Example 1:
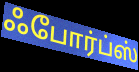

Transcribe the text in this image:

ஃபோர்ப்ஸ்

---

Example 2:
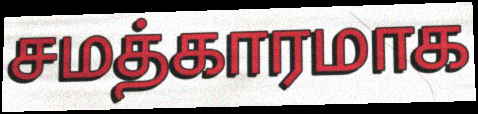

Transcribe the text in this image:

சமத்காரமாக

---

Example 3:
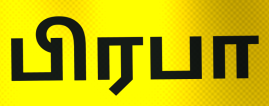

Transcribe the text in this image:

பிரபா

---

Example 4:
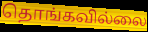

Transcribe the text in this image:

தொங்கவில்லை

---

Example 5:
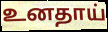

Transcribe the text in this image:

உனதாய்